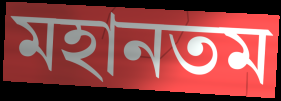
মহানতম